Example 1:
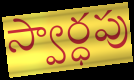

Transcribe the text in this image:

స్వార్ధపు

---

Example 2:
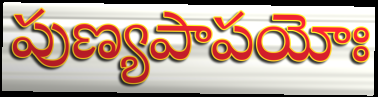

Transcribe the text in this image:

పుణ్యపాపయోః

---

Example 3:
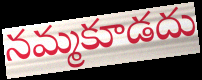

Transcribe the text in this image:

నమ్మకూడదు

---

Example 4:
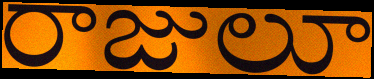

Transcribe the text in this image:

రాజులూ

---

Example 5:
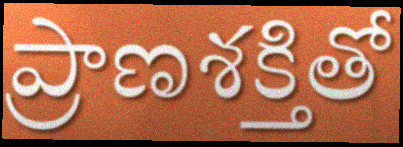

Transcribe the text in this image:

ప్రాణశక్తితో